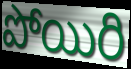
పోయిరి